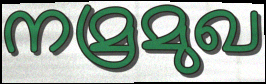
നമ്രമുഖ